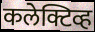
कलेक्टिव्ह